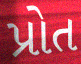
પ્રોત